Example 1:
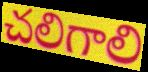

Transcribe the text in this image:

చలిగాలి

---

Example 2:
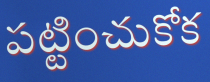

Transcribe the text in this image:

పట్టించుకోక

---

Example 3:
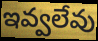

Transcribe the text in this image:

ఇవ్వలేవు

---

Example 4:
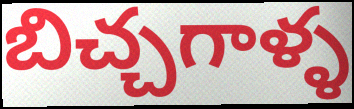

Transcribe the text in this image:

బిచ్చగాళ్ళ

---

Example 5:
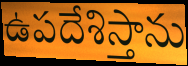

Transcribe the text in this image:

ఉపదేశిస్తాను